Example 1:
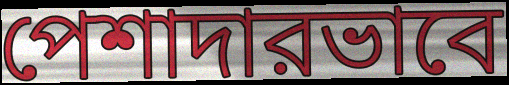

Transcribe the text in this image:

পেশাদারভাবে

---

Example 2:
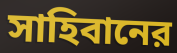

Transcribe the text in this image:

সাহিবানের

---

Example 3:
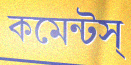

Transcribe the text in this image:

কমেন্টস্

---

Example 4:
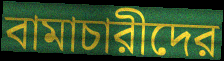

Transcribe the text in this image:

বামাচারীদের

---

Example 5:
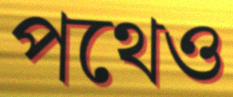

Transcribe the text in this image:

পথেও